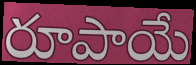
రూపాయే